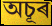
অচূৰ